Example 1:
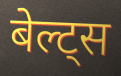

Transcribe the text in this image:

बेल्ट्स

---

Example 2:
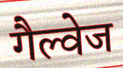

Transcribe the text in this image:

गैल्वेज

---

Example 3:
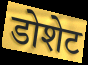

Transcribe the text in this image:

डोशेट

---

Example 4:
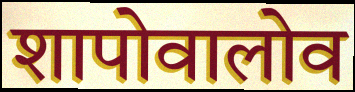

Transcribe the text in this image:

शापोवालोव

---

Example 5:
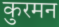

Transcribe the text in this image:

कुरमन